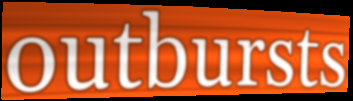
outbursts